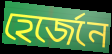
হেৰ্জেনে